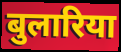
बुलारिया